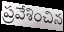
ప్రవేశించిన